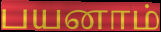
பயனாம்